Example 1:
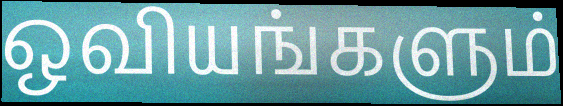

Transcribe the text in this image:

ஒவியங்களும்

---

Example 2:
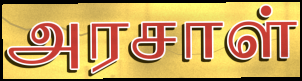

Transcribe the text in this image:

அரசாள்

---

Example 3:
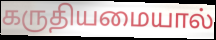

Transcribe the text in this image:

கருதியமையால்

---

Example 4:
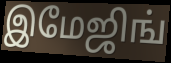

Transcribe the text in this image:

இமேஜிங்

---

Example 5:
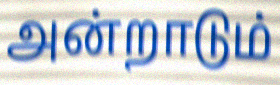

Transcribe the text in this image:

அன்றாடும்